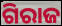
ଗିରାଜ